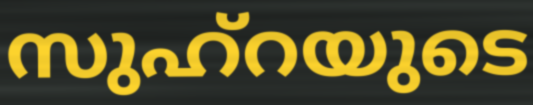
സുഹ്റയുടെ